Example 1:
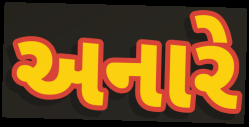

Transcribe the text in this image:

અનારે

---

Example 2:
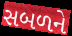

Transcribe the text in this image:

સબળને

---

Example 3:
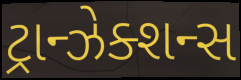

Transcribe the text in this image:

ટ્રાન્ઝેક્શન્સ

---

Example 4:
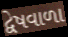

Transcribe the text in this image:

દ્વેષવાળા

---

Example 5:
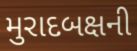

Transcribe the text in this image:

મુરાદબક્ષની